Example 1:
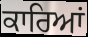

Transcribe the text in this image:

ਕਾਰਿਆਂ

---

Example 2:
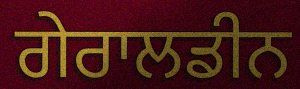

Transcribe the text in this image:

ਗੇਰਾਲਡੀਨ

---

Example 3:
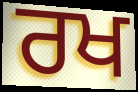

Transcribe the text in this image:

ਰਖ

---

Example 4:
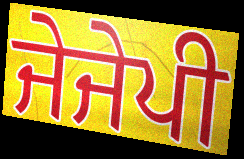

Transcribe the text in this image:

ਜੇਜੇਪੀ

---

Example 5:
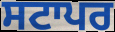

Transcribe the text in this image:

ਸਟਾਪਰ